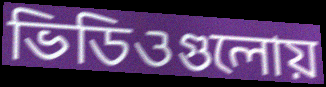
ভিডিওগুলোয়